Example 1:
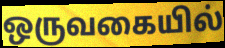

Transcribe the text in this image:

ஒருவகையில்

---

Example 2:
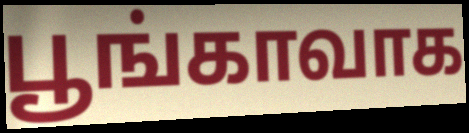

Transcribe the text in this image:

பூங்காவாக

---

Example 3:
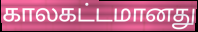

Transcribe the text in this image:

காலகட்டமானது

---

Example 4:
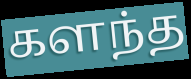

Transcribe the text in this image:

களந்த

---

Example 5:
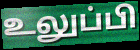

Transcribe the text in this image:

உலுப்பி